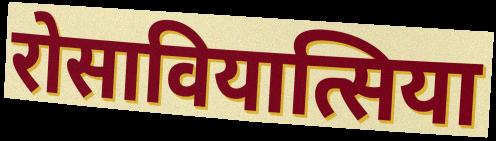
रोसावियात्सिया